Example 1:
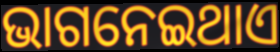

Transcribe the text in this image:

ଭାଗନେଇଥାଏ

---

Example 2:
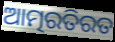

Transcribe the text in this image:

ଆତ୍ମରତିରତ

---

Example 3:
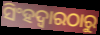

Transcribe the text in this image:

ସିଂହଦ୍ୱାରଠାରୁ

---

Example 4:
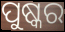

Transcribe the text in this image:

ପୁଷ୍କର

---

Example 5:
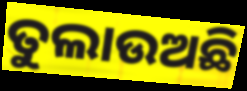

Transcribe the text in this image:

ତୁଲାଉଅଛି